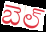
బెల్